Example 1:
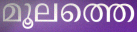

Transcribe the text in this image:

മൂലത്തെ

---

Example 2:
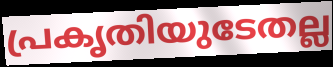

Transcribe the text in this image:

പ്രകൃതിയുടേതല്ല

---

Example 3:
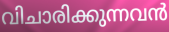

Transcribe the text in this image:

വിചാരിക്കുന്നവൻ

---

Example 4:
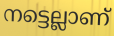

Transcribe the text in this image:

നട്ടെല്ലാണ്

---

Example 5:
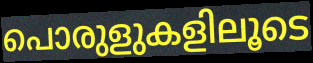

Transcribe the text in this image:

പൊരുളുകളിലൂടെ